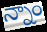
న్నాం